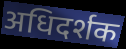
अधिदर्शक